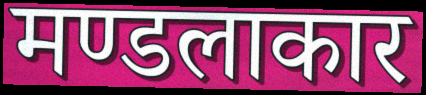
मण्डलाकार